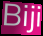
Biji